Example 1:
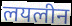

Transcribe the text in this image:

लयलीन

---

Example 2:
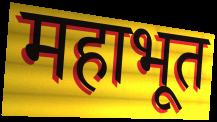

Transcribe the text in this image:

महाभूत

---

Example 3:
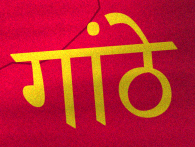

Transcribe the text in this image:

गांठे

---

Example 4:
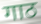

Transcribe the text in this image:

गाठ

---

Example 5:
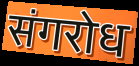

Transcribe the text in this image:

संगरोध